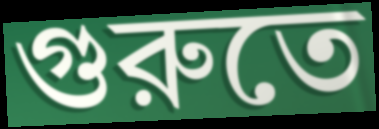
গুরুতে